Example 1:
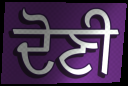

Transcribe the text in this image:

ਦੋਣੀ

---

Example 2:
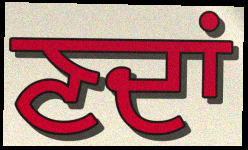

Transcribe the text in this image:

ਣਦਾਂ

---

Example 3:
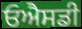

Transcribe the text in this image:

ਓਐਸਡੀ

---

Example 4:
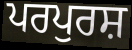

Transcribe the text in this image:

ਪਰਪੁਰਸ਼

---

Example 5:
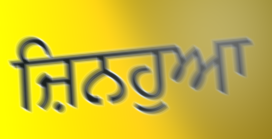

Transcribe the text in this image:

ਜ਼ਿਨਹੁਆ